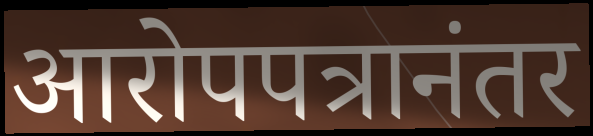
आरोपपत्रानंतर